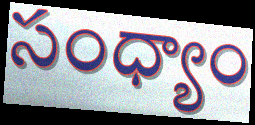
సంధ్యాం